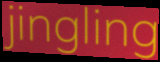
jingling